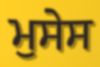
ਮੁਸੇਸ